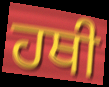
ਹਥੀ